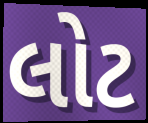
લોટ